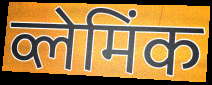
व्लेमिंक